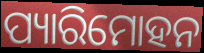
ପ୍ୟାରିମୋହନ